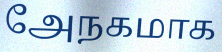
அேநகமாக